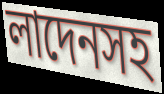
লাদেনসহ